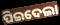
ପିଇଦେଲା